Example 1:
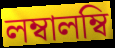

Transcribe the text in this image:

লম্বালম্বি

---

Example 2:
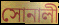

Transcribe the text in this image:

সোনালী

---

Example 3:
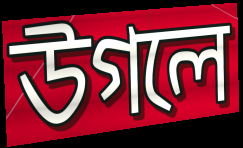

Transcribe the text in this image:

উগলে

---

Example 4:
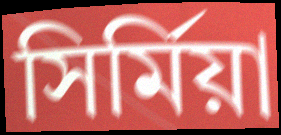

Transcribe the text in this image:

সির্মিয়া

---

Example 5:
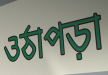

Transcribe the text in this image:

ওঠাপড়া